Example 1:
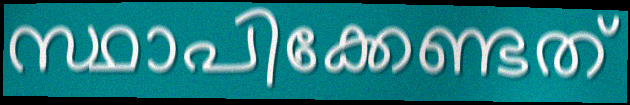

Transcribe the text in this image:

സ്ഥാപിക്കേണ്ടത്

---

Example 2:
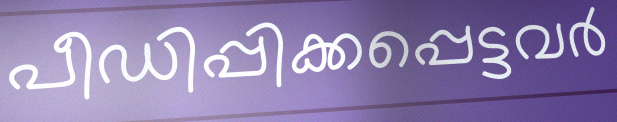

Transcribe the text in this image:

പീഡിപ്പിക്കപ്പെട്ടവർ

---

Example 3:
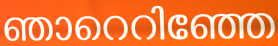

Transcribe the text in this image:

ഞാറെറിഞ്ഞേ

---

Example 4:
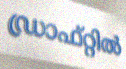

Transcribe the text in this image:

ഡ്രാഫ്റ്റിൽ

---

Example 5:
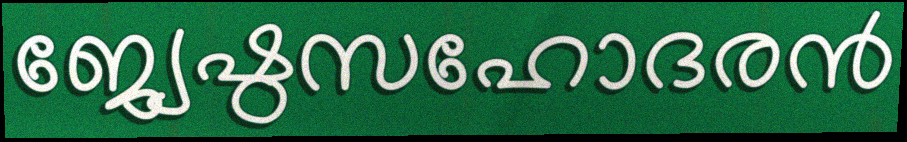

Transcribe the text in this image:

ജ്യേഷ്ഠസഹോദരൻ